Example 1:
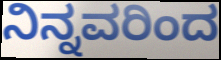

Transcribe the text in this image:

ನಿನ್ನವರಿಂದ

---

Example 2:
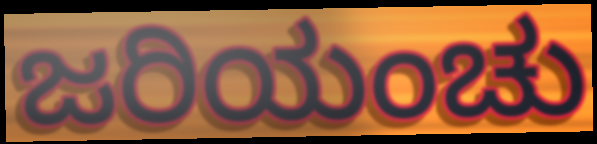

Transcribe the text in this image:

ಜರಿಯಂಚು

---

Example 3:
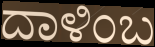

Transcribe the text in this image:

ದಾಳಿಂಬ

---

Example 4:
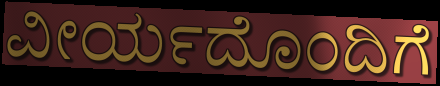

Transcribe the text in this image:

ವೀರ್ಯದೊಂದಿಗೆ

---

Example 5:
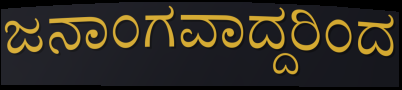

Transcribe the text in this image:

ಜನಾಂಗವಾದ್ದರಿಂದ